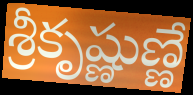
శ్రీకృష్ణుణ్ణే